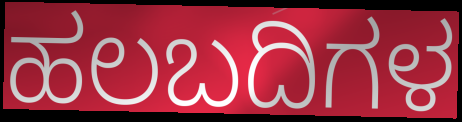
ಹಲಬದಿಗಳ